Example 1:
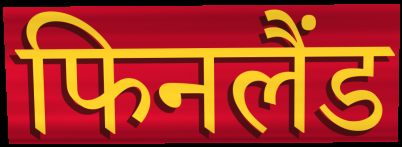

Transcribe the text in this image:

फिनलैंड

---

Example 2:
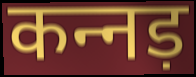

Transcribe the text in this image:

कन्नड़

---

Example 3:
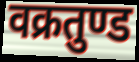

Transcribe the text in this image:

वक्रतुण्ड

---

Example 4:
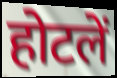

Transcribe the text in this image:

होटलें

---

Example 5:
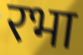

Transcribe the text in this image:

रभा